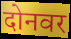
दोनवर